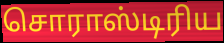
சொராஸ்டிரிய